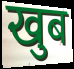
खुब